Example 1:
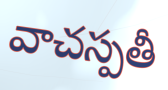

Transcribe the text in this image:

వాచస్పతీ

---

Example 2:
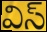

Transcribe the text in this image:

విస్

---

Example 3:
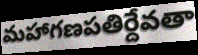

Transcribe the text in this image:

మహాగణపతిర్దేవతా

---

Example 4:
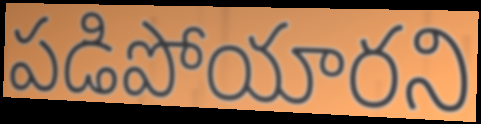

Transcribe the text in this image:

పడిపోయారని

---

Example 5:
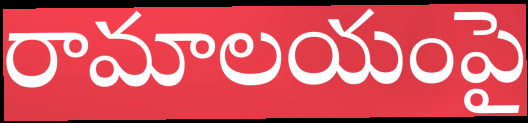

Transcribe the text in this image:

రామాలయంపై